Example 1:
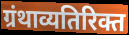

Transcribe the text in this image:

ग्रंथाव्यतिरिक्त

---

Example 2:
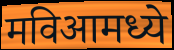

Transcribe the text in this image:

मविआमध्ये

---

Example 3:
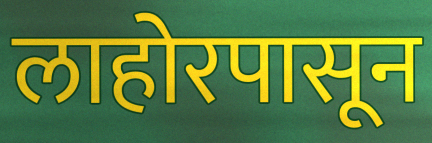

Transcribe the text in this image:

लाहोरपासून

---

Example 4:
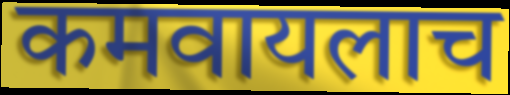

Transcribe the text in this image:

कमवायलाच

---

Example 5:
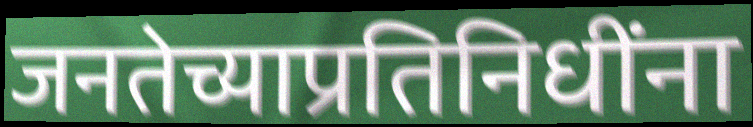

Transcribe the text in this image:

जनतेच्याप्रतिनिधींना